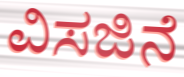
ವಿಸಜಿನೆ